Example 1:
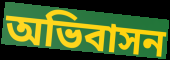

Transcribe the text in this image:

অভিবাসন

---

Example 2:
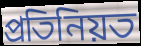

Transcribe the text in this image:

প্ৰতিনিয়ত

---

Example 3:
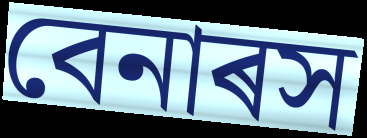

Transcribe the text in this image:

বেনাৰস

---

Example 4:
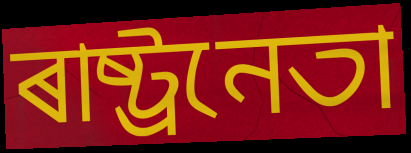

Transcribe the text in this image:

ৰাষ্ট্ৰনেতা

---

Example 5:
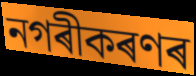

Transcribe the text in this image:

নগৰীকৰণৰ